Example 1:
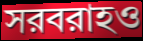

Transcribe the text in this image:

সরবরাহও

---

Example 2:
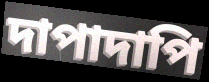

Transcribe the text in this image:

দাপাদাপি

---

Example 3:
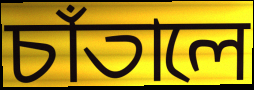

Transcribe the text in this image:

চাঁতালে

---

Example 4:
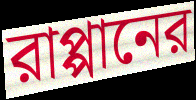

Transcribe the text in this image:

রাপ্পানের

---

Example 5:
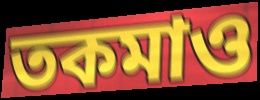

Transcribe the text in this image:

তকমাও